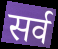
सर्व